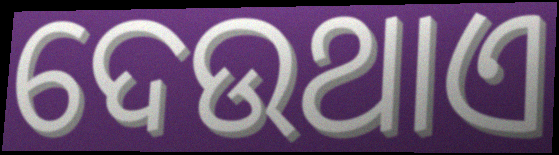
ଦେଉଥାଏ